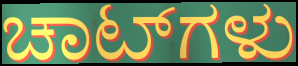
ಚಾಟ್‌ಗಳು